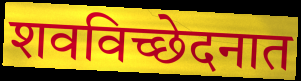
शवविच्छेदनात